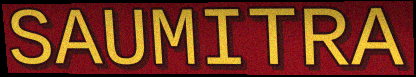
SAUMITRA